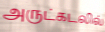
அருட்கடலில்